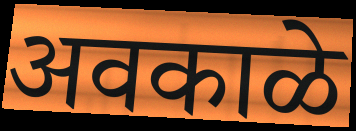
अवकाळे